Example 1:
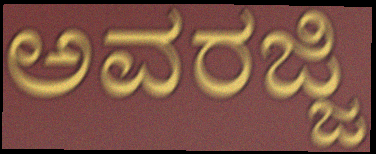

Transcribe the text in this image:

ಅವರಜ್ಜಿ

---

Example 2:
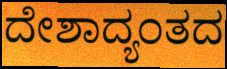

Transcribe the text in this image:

ದೇಶಾದ್ಯಂತದ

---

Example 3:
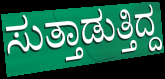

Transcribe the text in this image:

ಸುತ್ತಾಡುತ್ತಿದ್ದ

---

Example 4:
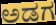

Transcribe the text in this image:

ಅಡಗ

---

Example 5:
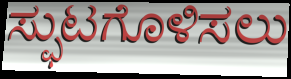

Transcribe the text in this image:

ಸ್ಫುಟಗೊಳಿಸಲು